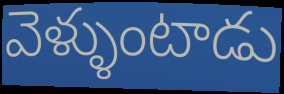
వెళ్ళుంటాడు